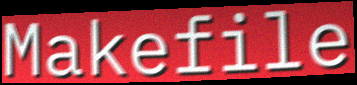
Makefile